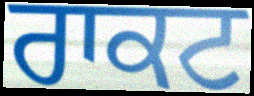
ਰਾਕਟ